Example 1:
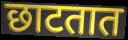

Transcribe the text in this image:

छाटतात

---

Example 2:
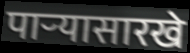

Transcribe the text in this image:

पाऱ्यासारखे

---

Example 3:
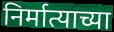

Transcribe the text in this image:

निर्मात्याच्या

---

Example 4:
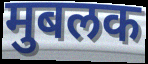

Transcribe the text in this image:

मुबलक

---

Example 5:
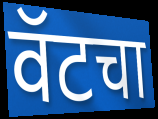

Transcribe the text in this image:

वॅटचा